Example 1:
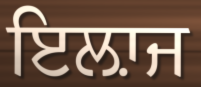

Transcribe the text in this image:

ਇਲ਼ਾਜ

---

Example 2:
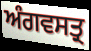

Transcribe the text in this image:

ਅੰਗਵਸਤ੍ਰ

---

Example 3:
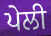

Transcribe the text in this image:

ਪੇਲੀ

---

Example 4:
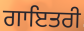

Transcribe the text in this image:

ਗਾਇਤਰੀ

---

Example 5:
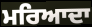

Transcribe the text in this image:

ਮਰਿਆਦਾ